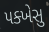
પક્ખેસુ